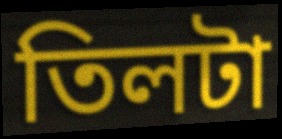
তিলটা